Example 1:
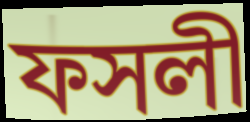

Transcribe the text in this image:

ফসলী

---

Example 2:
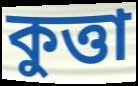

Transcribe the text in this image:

কুত্তা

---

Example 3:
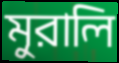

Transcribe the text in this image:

মুরালি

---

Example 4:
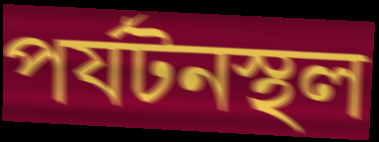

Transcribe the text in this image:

পর্যটনস্থল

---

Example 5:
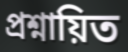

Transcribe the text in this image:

প্রশ্নায়িত